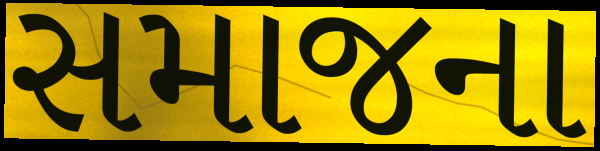
સમાજના